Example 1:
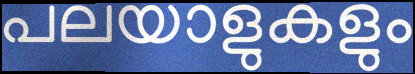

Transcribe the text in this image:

പലയാളുകളും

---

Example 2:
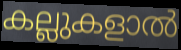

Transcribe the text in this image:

കല്ലുകളാൽ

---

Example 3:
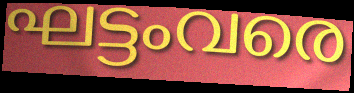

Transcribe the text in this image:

ഘട്ടംവരെ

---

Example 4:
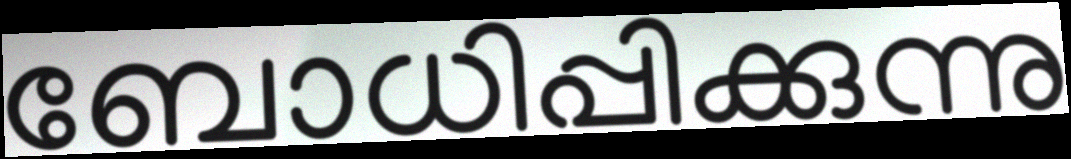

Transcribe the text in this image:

ബോധിപ്പിക്കുന്നു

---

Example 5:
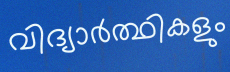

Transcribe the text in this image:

വിദ്യാർത്ഥികളും